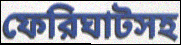
ফেরিঘাটসহ